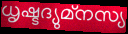
ധൃഷ്ടദ്യുമ്നസ്യ